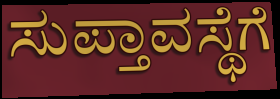
ಸುಪ್ತಾವಸ್ಥೆಗೆ